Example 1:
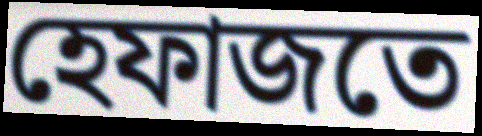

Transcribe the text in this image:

হেফাজতে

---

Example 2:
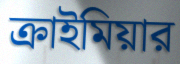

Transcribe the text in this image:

ক্রাইমিয়ার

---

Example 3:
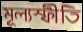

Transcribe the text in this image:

মূল্যস্ফীতি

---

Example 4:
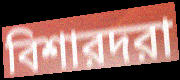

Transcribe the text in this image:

বিশারদরা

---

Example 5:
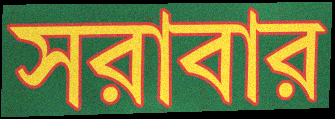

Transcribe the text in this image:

সরাবার